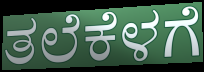
ತಲೆಕೆಳಗೆ